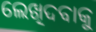
ଲେଖିଦବାକୁ